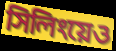
সিলিংয়েও